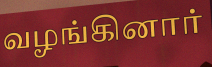
வழங்கினார்